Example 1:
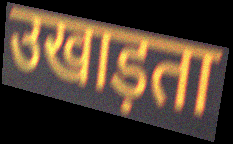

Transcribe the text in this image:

उखाड़ता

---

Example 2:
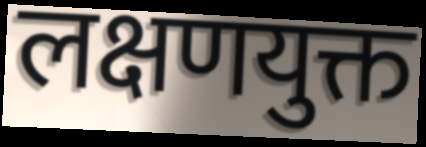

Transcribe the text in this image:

लक्षणयुक्त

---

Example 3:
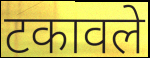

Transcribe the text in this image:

टकावले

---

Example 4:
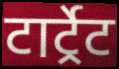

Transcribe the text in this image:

टार्ट्रेट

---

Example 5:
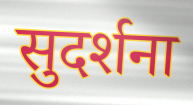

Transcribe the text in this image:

सुदर्शना